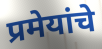
प्रमेयांचे